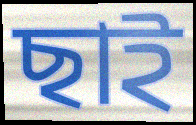
ছাই